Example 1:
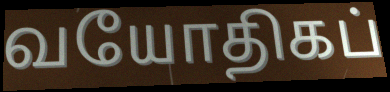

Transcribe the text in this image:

வயோதிகப்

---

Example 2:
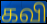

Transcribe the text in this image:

கவி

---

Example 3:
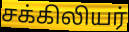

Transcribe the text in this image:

சக்கிலியர்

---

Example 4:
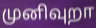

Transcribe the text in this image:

முனிவுறா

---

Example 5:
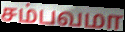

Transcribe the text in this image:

சம்பவமா